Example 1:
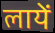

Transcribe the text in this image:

लायें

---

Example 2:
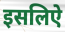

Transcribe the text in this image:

इसलिऐ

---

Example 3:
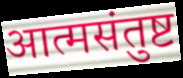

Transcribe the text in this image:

आत्मसंतुष्ट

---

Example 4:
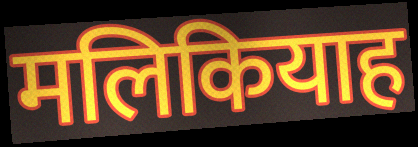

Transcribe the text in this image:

मलिकियाह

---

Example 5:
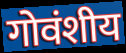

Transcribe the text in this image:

गोवंशीय